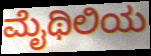
ಮೈಥಿಲಿಯ